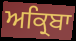
ਅਕ੍ਰਿਬਾ